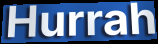
Hurrah